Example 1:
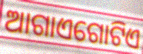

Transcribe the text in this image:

ଆଗାଏଗୋଟିଏ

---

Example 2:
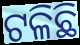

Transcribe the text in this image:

ଟଳିଛି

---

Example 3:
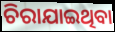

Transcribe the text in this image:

ଚିରାଯାଇଥିବା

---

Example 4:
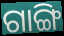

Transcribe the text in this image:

ଗାଙ୍ଗି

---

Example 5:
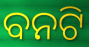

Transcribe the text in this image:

ବନଟି